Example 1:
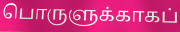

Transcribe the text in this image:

பொருளுக்காகப்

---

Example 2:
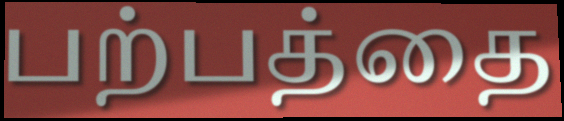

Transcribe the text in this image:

பற்பத்தை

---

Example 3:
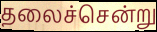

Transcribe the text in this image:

தலைச்சென்று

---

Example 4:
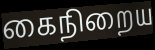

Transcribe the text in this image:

கைநிறைய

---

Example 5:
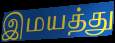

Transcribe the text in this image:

இமயத்து